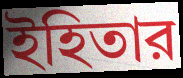
ইহিতার